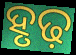
ହୃଢ଼